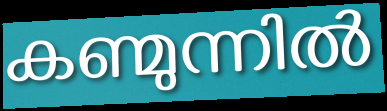
കണ്മുന്നിൽ